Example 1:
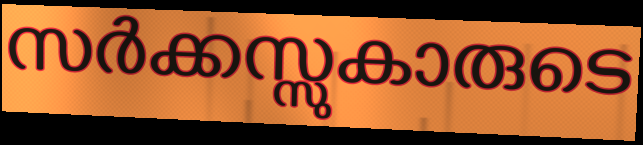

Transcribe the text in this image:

സർക്കസ്സുകാരുടെ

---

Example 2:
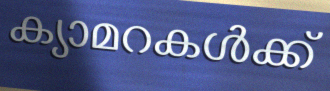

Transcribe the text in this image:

ക്യാമറകൾക്ക്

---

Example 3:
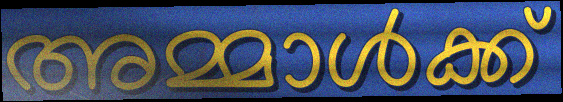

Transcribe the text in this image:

അമ്മാൾക്ക്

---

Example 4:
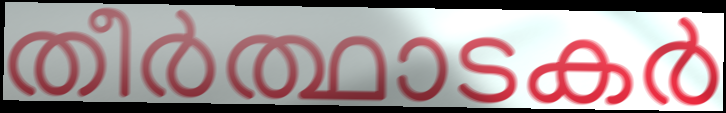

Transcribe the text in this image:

തീർത്ഥാടകർ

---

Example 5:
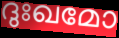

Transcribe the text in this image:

ദുഃഖമോ